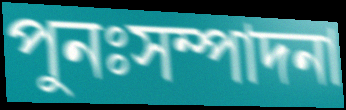
পুনঃসম্পাদনা